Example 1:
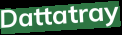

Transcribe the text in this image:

Dattatray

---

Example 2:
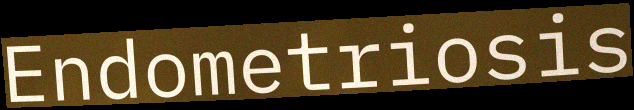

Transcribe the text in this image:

Endometriosis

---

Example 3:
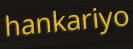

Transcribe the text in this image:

hankariyo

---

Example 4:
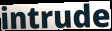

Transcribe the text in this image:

intrude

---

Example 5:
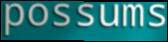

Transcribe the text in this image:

possums